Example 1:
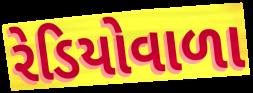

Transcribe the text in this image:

રેડિયોવાળા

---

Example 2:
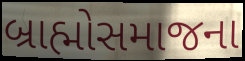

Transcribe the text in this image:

બ્રાહ્મોસમાજના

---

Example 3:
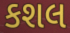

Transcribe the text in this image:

કશલ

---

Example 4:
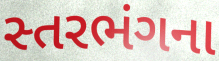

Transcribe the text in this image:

સ્તરભંગના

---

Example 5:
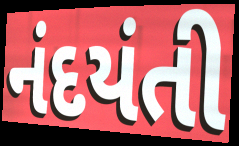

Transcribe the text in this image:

નંદયંતી